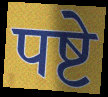
पष्टे